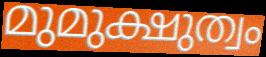
മുമുക്ഷുത്വം